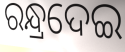
ରନ୍ଧ୍ରଦେଇ